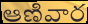
ఆణివార